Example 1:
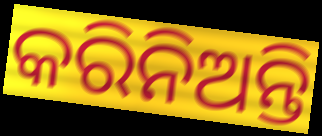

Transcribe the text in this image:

କରିନିଅନ୍ତି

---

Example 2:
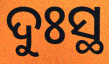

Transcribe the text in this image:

ଦୁଃସ୍ଥ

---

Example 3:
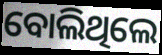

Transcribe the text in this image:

ବୋଲିଥିଲେ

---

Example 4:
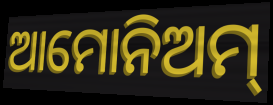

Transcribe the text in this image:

ଆମୋନିଅମ୍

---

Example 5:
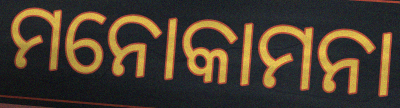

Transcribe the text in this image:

ମନୋକାମନା